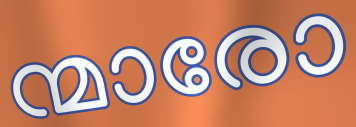
ന്മാരോ